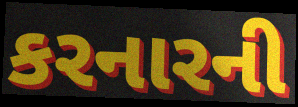
કરનારની